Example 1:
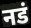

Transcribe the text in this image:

नडं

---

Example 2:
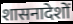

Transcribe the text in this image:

शासनादेशों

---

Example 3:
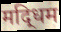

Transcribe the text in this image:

मद्धिम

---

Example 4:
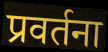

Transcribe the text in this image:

प्रवर्तना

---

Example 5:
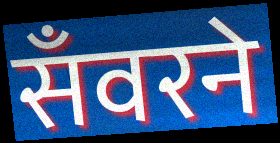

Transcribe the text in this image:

सँवरने